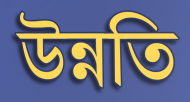
উন্নতি